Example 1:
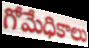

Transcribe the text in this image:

గోమేధికాలు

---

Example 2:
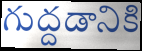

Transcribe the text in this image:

గుద్దడానికి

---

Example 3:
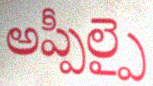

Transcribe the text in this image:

అప్పీల్పై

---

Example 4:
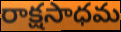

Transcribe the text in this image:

రాక్షసాధమ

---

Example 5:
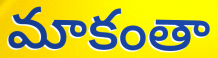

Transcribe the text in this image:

మాకంతా